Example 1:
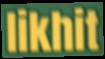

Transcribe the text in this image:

likhit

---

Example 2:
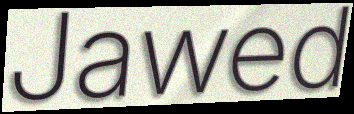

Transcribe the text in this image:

Jawed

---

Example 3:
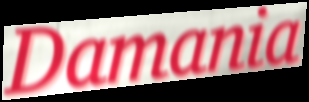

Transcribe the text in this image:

Damania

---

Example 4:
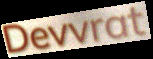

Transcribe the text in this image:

Devvrat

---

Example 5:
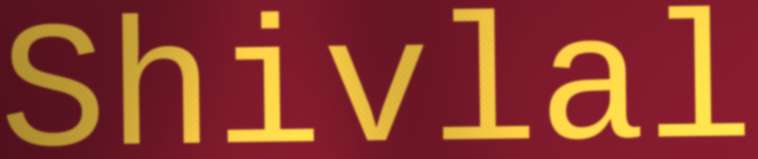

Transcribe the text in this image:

Shivlal